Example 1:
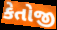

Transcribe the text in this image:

કેતોજી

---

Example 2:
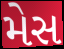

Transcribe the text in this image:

મેસ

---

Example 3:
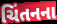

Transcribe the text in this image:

ચિંતનના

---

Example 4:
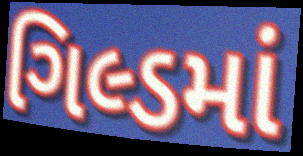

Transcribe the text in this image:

ગિલ્ડમાં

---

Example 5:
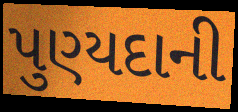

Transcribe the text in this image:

પુણ્યદાની